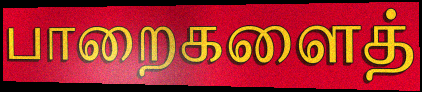
பாறைகளைத்